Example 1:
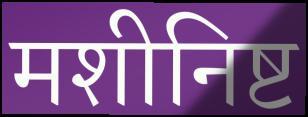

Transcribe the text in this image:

मशीनिष्ट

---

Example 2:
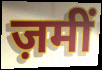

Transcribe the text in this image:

ज़मीं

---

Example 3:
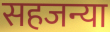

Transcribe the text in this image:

सहजन्या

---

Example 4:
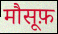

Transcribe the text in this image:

मौसूफ़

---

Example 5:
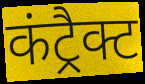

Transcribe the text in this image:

कंट्रैक्ट